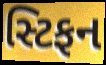
સ્ટિફન